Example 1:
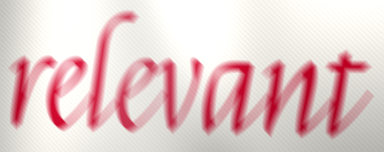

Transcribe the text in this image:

relevant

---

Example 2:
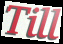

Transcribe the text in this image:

Till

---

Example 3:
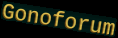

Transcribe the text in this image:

Gonoforum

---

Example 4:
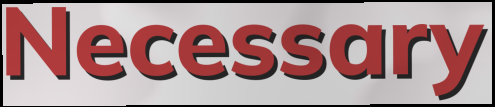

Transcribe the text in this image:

Necessary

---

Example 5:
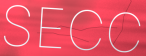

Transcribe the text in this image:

SECC